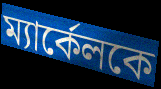
ম্যার্কেলকে